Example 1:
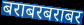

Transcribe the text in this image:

बराबरबराबर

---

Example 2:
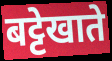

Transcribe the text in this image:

बट्टेखाते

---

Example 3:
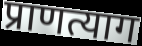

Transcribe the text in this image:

प्राणत्याग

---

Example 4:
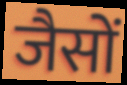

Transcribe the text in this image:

जैसों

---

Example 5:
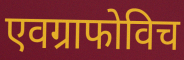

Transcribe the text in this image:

एवग्राफोविच